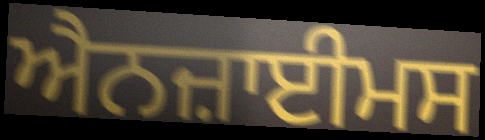
ਐਨਜ਼ਾਈਮਸ